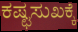
ಕಷ್ಟಸುಖಕ್ಕೆ